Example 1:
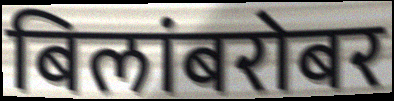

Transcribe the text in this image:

बिलांबरोबर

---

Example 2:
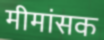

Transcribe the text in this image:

मीमांसक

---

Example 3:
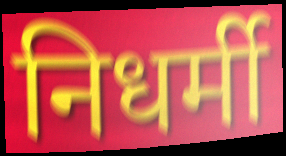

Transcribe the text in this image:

निधर्मी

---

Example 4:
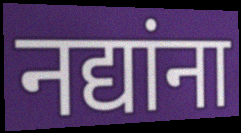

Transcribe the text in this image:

नद्यांना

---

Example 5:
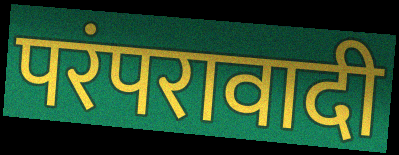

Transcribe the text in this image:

परंपरावादी